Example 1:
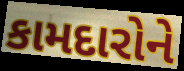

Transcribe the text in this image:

કામદારોને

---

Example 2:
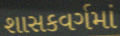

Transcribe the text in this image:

શાસકવર્ગમાં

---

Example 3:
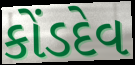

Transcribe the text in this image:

કોંડદેવ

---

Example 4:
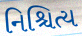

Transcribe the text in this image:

નિશ્ચિત્ય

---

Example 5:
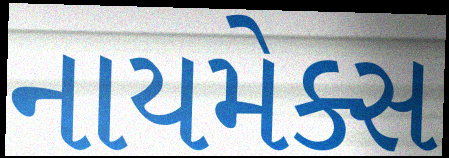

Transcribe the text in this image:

નાયમેક્સ